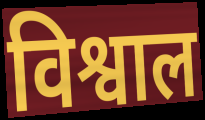
विश्वाल